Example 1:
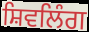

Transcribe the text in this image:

ਸ਼ਿਵਲਿੰਗ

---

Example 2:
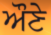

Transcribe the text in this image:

ਔਣੇ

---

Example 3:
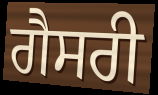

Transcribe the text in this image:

ਗੈਸਰੀ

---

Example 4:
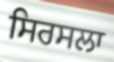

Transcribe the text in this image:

ਸਿਰਸਲਾ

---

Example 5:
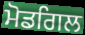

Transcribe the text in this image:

ਮੋਡਗਿਲ